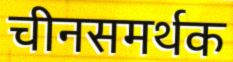
चीनसमर्थक